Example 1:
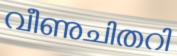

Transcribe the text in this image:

വീണുചിതറി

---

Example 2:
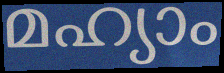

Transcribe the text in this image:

മഹ്യാം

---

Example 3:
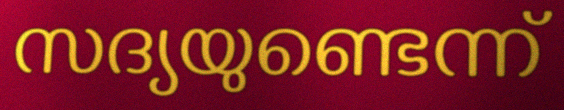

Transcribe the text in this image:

സദ്യയുണ്ടെന്ന്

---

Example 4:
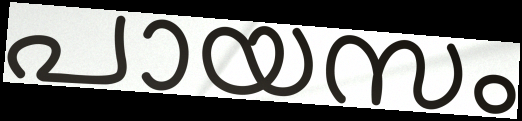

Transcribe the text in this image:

പായസം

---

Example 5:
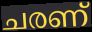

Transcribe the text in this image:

ചരണ്